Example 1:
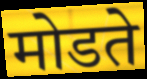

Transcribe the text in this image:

मोडते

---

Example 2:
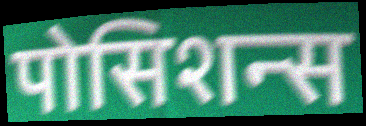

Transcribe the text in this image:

पोसिशन्स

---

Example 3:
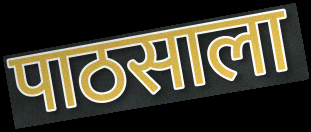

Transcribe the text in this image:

पाठसाला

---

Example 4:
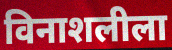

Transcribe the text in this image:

विनाशलीला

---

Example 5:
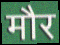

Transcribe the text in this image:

मौर